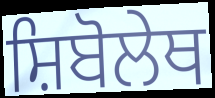
ਸ਼ਿਬੋਲੇਥ